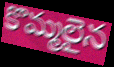
కొమ్మలైన